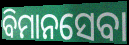
ବିମାନସେବା